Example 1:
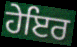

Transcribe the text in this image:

ਹੇਇਰ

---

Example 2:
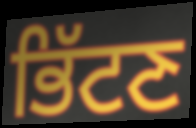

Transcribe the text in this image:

ਭਿੱਟਣ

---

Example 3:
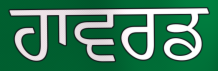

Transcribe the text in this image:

ਹਾਵਰਡ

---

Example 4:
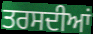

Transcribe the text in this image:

ਤਰਸਦੀਆਂ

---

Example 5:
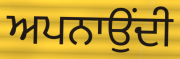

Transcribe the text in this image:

ਅਪਨਾਉਂਦੀ